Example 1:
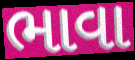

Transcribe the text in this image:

ભાવા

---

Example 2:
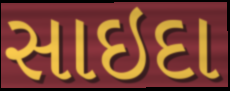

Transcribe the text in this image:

સાઇદા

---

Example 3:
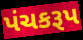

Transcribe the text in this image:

પંચકરૂપ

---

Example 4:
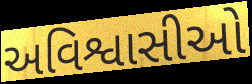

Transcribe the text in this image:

અવિશ્વાસીઓ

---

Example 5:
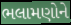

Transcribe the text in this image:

ભલામણોને